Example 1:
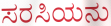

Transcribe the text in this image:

ಸರಸಿಯನು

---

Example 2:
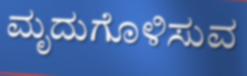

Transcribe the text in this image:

ಮೃದುಗೊಳಿಸುವ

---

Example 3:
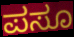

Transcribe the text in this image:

ಪಸೂ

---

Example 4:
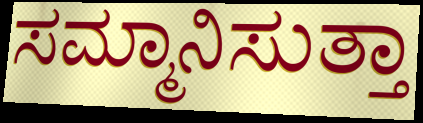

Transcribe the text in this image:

ಸಮ್ಮಾನಿಸುತ್ತಾ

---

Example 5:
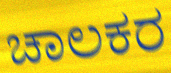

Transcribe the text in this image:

ಚಾಲಕರ